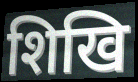
शिखि